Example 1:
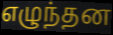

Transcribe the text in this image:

எழுந்தன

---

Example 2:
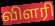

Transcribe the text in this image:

விளரி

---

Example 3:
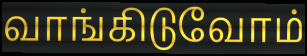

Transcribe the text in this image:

வாங்கிடுவோம்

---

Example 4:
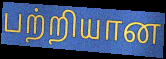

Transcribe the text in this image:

பற்றியான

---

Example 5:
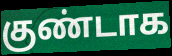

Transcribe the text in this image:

குண்டாக